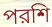
পরশি